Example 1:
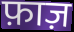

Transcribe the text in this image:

फ़ाज़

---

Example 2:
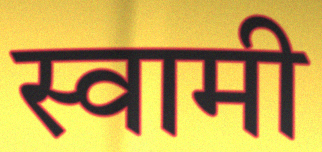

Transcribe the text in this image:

स्‍वामी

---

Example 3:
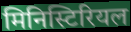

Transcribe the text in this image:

मिनिस्टिरियल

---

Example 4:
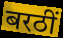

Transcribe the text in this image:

बरठीं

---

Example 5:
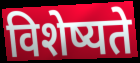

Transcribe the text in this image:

विशेष्यते